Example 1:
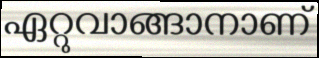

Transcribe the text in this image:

ഏറ്റുവാങ്ങാനാണ്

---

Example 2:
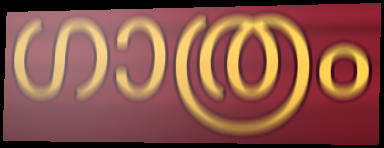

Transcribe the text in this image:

ഗാത്രം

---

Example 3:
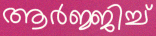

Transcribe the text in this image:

ആർജ്ജിച്ച്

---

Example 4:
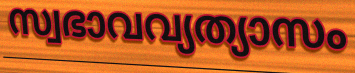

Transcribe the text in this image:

സ്വഭാവവ്യത്യാസം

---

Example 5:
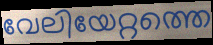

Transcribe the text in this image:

വേലിയേറ്റത്തെ